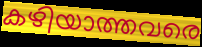
കഴിയാത്തവരെ